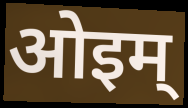
ओइम्